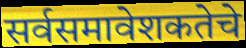
सर्वसमावेशकतेचे